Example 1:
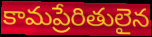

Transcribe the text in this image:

కామప్రేరితులైన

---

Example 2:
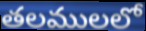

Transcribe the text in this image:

తలములలో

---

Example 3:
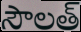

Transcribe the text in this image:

సౌలత్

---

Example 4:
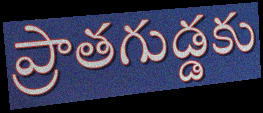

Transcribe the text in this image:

ప్రాతగుడ్డకు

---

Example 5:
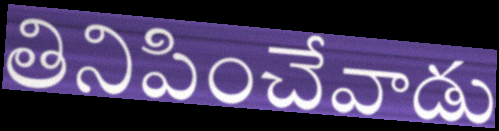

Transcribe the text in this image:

తినిపించేవాడు